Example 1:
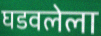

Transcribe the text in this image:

घडवलेला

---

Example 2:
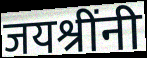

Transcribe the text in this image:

जयश्रींनी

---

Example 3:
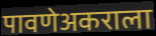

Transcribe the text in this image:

पावणेअकराला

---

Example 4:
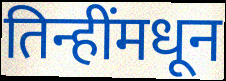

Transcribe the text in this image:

तिन्हींमधून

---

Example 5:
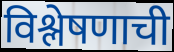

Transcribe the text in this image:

विश्लेषणाची